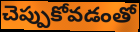
చెప్పుకోవడంతో